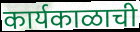
कार्यकाळाची